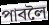
পাবলৈ